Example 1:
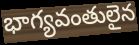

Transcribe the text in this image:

భాగ్యవంతులైన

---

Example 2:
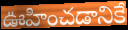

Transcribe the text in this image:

ఊహించడానికే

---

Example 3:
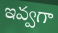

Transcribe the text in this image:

ఇవ్వగా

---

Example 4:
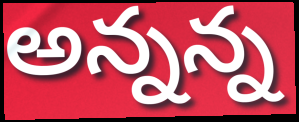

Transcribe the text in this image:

అన్నన్న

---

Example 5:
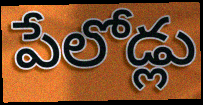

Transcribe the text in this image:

పేలోడ్లు